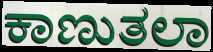
ಕಾಣುತಲಾ